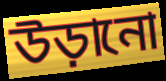
উড়ানো